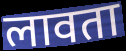
लावता